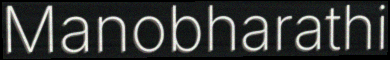
Manobharathi